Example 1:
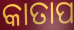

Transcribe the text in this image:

କାତାପ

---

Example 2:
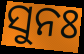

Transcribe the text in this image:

ସୁନଃ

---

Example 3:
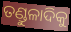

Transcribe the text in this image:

ତଣ୍ଡୁଳାଦିକୁ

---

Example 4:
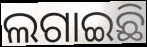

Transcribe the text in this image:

ଲଗାଇଛି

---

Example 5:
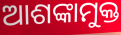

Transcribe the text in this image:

ଆଶଙ୍କାମୁକ୍ତ